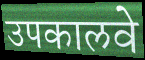
उपकालवे